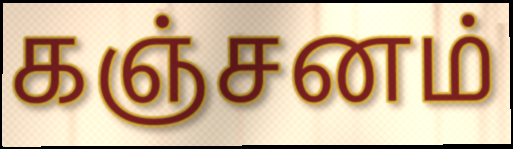
கஞ்சனம்